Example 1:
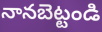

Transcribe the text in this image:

నానబెట్టండి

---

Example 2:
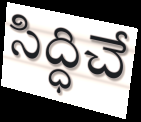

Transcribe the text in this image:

సిద్ధిచే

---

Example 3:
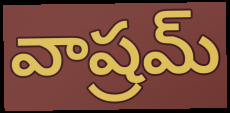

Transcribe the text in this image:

వాష్రమ్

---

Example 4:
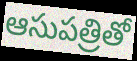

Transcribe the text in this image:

ఆసుపత్రితో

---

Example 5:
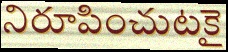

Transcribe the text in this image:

నిరూపించుటకై